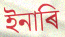
ইনাৰি